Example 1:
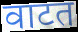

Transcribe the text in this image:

वाटत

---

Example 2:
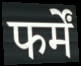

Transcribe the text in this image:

फर्में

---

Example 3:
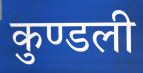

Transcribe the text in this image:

कुण्डली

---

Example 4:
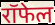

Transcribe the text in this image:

रॉफेल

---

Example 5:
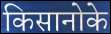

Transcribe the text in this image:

किसानोके